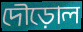
দৌড়োল